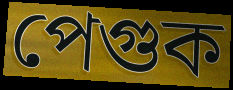
পেগুক